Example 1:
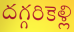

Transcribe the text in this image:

దగ్గరికెళ్లి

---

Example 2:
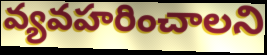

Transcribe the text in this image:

వ్యవహరించాలని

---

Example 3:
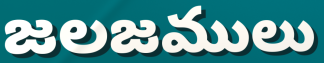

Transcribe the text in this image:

జలజములు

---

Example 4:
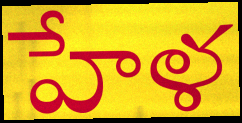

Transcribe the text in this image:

హేళ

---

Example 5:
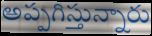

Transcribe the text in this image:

అప్పగిస్తున్నారు